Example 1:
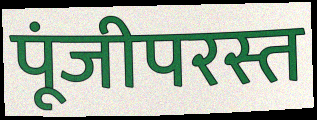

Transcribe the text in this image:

पूंजीपरस्त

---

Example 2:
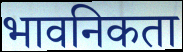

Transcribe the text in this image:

भावनिकता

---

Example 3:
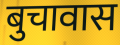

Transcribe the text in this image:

बुचावास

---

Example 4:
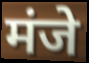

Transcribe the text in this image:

मंजे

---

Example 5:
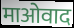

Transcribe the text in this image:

माओवाद